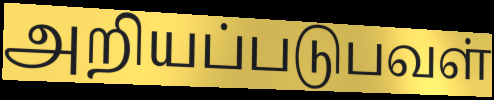
அறியப்படுபவள்